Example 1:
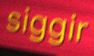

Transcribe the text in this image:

siggir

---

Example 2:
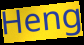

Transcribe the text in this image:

Heng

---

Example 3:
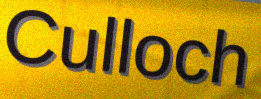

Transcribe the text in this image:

Culloch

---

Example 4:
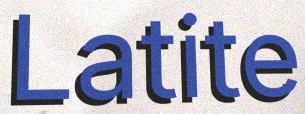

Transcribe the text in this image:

Latite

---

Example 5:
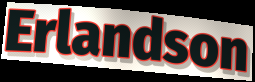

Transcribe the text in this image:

Erlandson